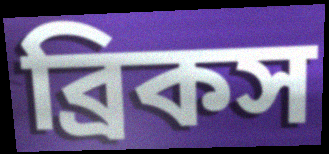
ব্রিকস